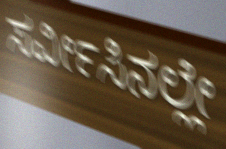
ಸರ್ವೀಸಿನಲ್ಲೇ